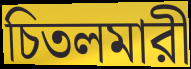
চিতলমারী